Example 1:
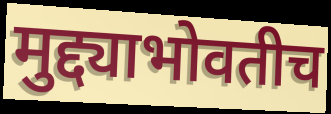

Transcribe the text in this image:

मुद्द्याभोवतीच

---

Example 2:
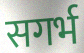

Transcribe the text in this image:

सगर्भ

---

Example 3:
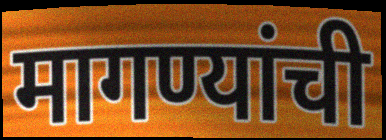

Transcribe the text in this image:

मागण्यांची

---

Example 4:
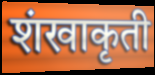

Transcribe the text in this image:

शंखाकृती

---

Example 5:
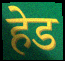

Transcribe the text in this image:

हेड